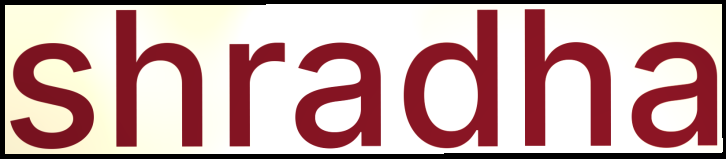
shradha